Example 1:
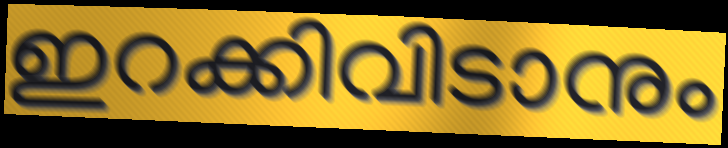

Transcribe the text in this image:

ഇറക്കിവിടാനും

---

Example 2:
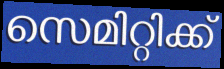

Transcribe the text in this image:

സെമിറ്റിക്ക്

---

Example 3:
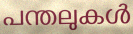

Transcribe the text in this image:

പന്തലുകൾ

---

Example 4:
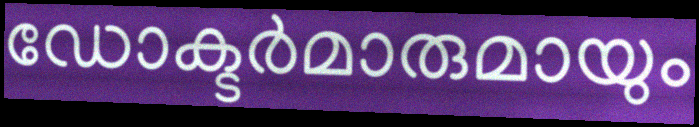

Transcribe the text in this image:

ഡോക്ടർമാരുമായും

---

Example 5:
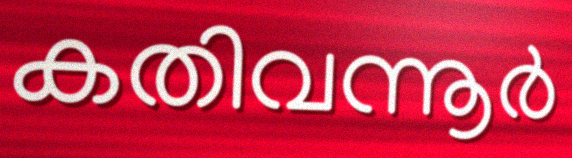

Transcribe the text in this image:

കതിവന്നൂർ